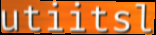
utiitsl